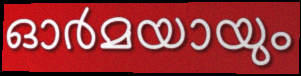
ഓർമയായും